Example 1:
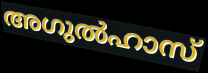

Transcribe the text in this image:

അഗുൽഹാസ്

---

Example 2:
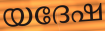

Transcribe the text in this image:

യദേഷ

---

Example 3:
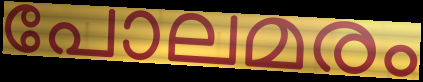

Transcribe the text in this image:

പോലമരം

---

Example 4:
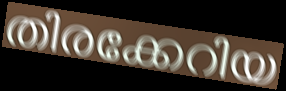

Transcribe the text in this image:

തിരക്കേറിയ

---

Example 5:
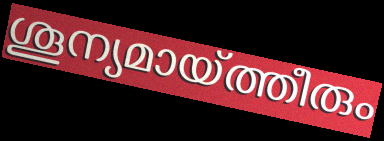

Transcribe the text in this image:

ശൂന്യമായ്ത്തീരും